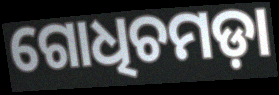
ଗୋଧିଚମଡ଼ା